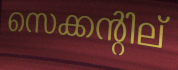
സെക്കന്റില്